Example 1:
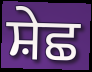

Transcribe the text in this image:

ਸ਼ੇਛ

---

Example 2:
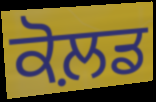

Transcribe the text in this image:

ਕੋਲ਼ਡ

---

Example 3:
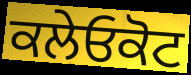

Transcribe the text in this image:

ਕਲੇਓਕੋਟ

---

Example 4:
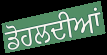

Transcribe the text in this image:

ਡੋਹਲਦੀਆਂ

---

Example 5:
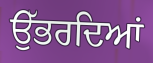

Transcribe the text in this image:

ਉੱਭਰਦਿਆਂ